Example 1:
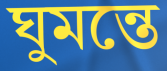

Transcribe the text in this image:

ঘুমন্তে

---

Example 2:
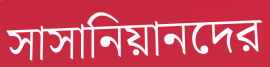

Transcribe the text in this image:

সাসানিয়ানদের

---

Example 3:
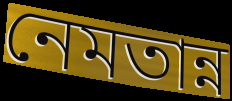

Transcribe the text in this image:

নেমতান্ন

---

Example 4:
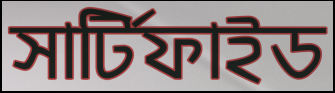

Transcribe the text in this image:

সার্টিফাইড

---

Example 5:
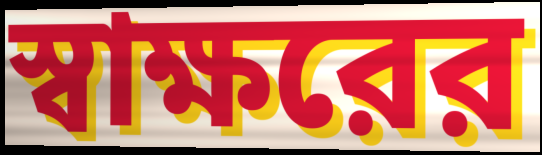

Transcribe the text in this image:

স্বাক্ষরের